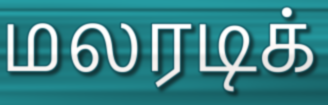
மலரடிக்